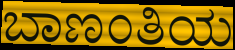
ಬಾಣಂತಿಯ